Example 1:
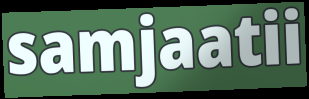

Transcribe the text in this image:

samjaatii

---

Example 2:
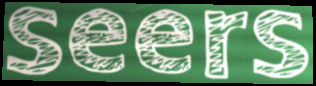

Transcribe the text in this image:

seers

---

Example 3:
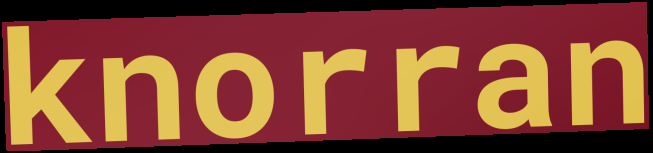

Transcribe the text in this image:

knorran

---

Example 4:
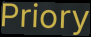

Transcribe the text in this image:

Priory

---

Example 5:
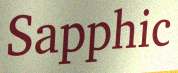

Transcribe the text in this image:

Sapphic